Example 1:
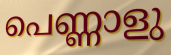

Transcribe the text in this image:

പെണ്ണാളു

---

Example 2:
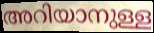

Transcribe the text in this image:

അറിയാനുള്ള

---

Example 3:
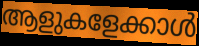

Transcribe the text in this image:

ആളുകളേക്കാൾ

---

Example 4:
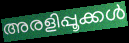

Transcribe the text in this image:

അരളിപ്പൂക്കൾ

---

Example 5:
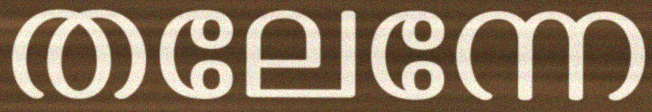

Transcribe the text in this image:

തലേന്നേ